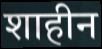
शाहीन